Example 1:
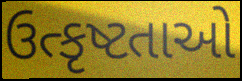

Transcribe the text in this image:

ઉત્કૃષ્ટતાઓ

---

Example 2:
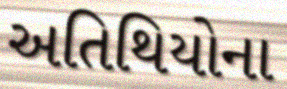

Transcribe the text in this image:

અતિથિયોના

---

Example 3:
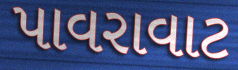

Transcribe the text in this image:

પાવરાવાટ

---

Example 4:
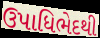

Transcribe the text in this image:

ઉપાધિભેદથી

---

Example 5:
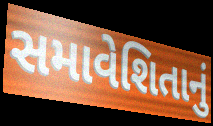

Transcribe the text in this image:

સમાવેશિતાનું